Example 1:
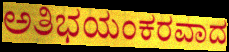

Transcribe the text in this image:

ಅತಿಭಯಂಕರವಾದ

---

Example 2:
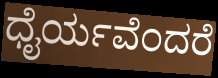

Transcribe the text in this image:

ಧೈರ್ಯವೆಂದರೆ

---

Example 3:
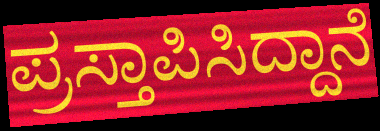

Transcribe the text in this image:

ಪ್ರಸ್ತಾಪಿಸಿದ್ದಾನೆ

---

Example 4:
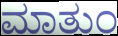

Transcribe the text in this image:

ಮಾತುಂ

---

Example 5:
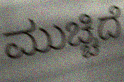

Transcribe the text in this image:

ಮುಚ್ಚಿದೆ